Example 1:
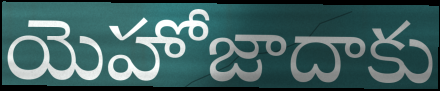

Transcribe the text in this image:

యెహోజాదాకు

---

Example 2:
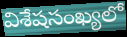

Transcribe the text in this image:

విశేషసంఖ్యలో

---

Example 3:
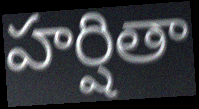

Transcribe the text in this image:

హర్షితా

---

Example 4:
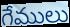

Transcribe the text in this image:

గేములు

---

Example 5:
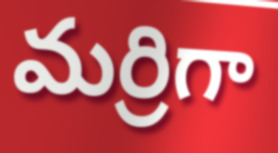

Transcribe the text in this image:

మర్రిగా